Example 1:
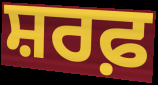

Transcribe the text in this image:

ਸ਼ਰਫ਼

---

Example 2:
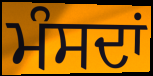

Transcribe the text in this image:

ਮੰਸਦਾਂ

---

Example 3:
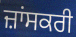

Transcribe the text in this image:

ਜ਼ਾਂਸਕਰੀ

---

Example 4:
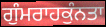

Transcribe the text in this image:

ਗੁੰਮਰਾਹਕੁੰਨਤਾ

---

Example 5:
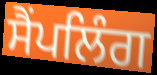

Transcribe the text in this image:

ਸੈਂਪਲਿੰਗ